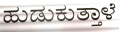
ಹುಡುಕುತ್ತಾಳೆ